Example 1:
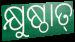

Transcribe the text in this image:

କ୍ଷୁଷ୍ଠାତ୍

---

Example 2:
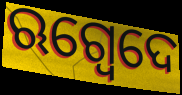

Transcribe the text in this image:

ଋଗ୍ଵେଦେ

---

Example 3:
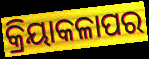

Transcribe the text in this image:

କ୍ରିୟାକଳାପର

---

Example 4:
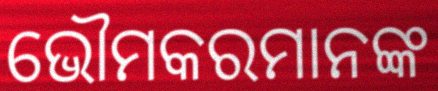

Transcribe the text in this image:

ଭୌମକରମାନଙ୍କ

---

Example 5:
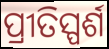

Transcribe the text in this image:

ପ୍ରୀତିସ୍ପର୍ଶ